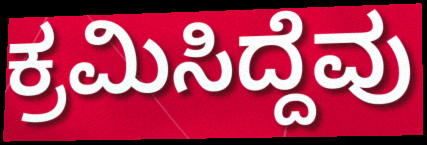
ಕ್ರಮಿಸಿದ್ದೆವು